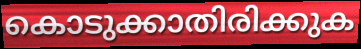
കൊടുക്കാതിരിക്കുക